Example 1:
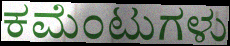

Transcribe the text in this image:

ಕಮೆಂಟುಗಳು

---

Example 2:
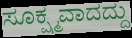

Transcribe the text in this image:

ಸೂಕ್ಷ್ಮವಾದದ್ದು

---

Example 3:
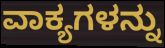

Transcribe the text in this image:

ವಾಕ್ಯಗಳನ್ನು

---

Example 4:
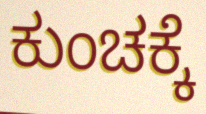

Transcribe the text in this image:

ಕುಂಚಕ್ಕೆ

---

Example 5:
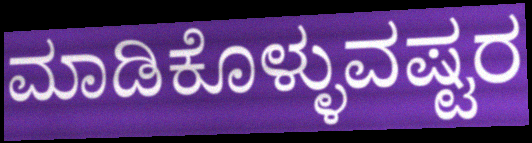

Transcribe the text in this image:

ಮಾಡಿಕೊಳ್ಳುವಷ್ಟರ